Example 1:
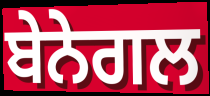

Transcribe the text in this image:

ਬੇਨੇਗਲ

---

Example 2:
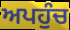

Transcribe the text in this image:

ਅਪਹੁੰਚ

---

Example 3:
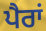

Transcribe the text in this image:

ਪੈਰਾਂ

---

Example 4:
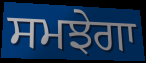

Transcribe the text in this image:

ਸਮਝੇਗਾ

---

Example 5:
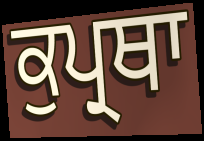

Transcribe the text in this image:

ਕੁਪ੍ਰਥਾ